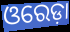
ଓରେଡ଼ା